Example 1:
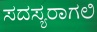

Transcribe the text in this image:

ಸದಸ್ಯರಾಗಲಿ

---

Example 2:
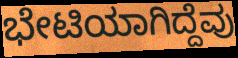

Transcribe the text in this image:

ಭೇಟಿಯಾಗಿದ್ದೆವು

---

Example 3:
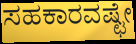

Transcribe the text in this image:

ಸಹಕಾರವಷ್ಟೇ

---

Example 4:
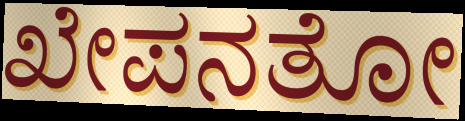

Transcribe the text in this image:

ಖೇಪನತೋ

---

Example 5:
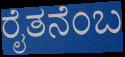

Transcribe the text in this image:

ರೈತನೆಂಬ